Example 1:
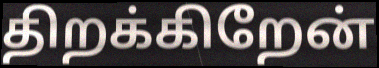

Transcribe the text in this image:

திறக்கிறேன்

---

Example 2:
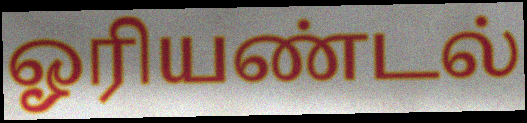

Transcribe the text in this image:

ஓரியண்டல்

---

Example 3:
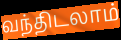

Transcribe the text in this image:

வந்திடலாம்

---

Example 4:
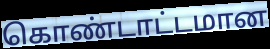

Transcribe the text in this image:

கொண்டாட்டமான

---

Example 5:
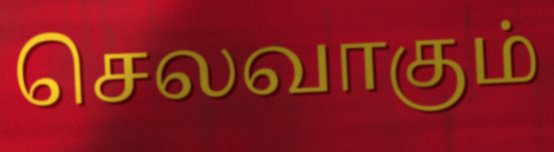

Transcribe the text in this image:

செலவாகும்